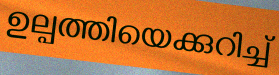
ഉല്പത്തിയെക്കുറിച്ച്